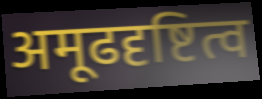
अमूढदृष्टित्व